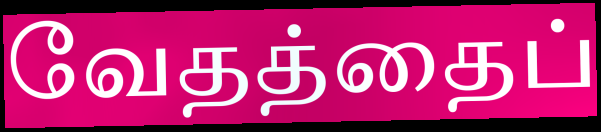
வேதத்தைப்